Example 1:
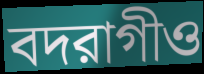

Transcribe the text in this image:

বদরাগীও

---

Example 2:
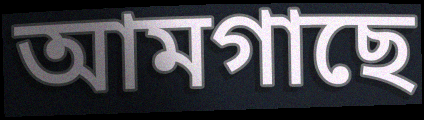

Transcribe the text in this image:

আমগাছে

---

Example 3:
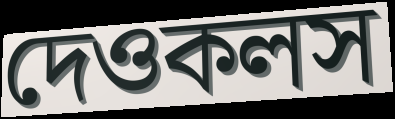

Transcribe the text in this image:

দেওকলস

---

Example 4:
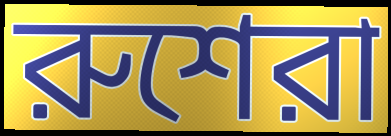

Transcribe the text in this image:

রুশেরা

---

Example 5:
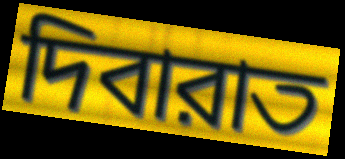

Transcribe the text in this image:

দিবারাত